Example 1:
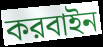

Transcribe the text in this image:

করবাইন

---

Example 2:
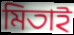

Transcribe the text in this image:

মিতাই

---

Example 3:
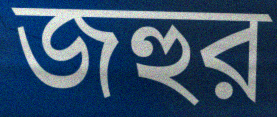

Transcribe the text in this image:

জহুর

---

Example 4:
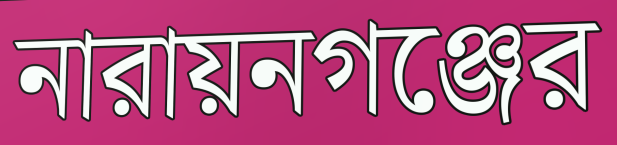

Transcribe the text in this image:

নারায়নগঞ্জের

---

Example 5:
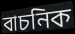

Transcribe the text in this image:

বাচনিক